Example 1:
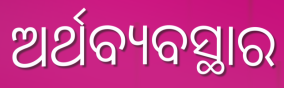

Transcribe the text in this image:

ଅର୍ଥବ୍ୟବସ୍ଥାର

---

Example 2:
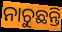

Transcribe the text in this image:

ନାଚୁଛନ୍ତି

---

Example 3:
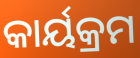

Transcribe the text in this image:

କାର୍ୟକ୍ରମ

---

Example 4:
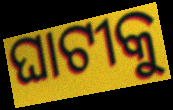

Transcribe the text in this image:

ଘାଟୀକୁ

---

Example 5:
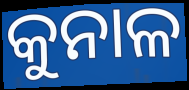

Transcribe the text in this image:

କୁନାଳ